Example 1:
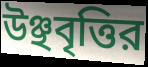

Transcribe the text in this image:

উঞ্ছবৃত্তির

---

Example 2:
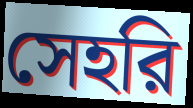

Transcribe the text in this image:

সেহরি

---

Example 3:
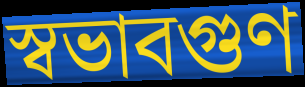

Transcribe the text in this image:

স্বভাবগুণ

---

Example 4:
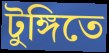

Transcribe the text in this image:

টুঙ্গিতে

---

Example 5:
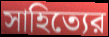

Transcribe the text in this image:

সাহিত্যের